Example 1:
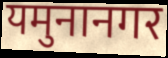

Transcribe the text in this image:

यमुनानगर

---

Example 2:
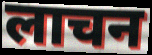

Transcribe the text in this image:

लाचन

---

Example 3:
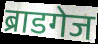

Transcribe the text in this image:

ब्राडगेज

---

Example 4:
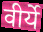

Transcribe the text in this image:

वीर्ये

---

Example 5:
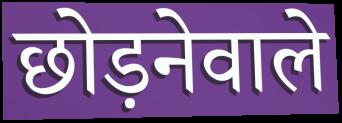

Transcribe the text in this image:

छोड़नेवाले